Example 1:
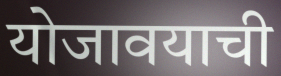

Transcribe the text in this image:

योजावयाची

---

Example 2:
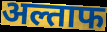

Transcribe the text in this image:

अल्ताफ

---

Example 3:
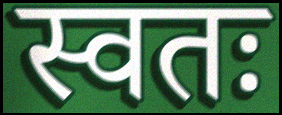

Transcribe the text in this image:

स्वतः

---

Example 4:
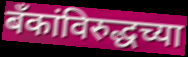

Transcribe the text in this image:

बँकांविरुद्धच्या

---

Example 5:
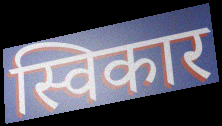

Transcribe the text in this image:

स्विकार